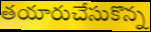
తయారుచేసుకొన్న